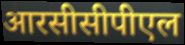
आरसीसीपीएल